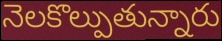
నెలకొల్పుతున్నారు